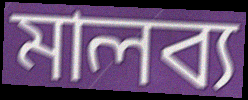
মালব্য